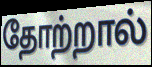
தோற்றால்